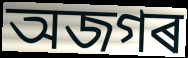
অজগৰ